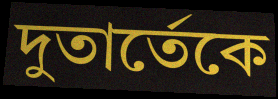
দুতার্তেকে